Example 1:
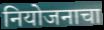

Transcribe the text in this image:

नियोजनाचा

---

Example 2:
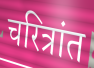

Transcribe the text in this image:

चरित्रांत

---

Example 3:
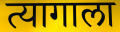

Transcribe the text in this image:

त्यागाला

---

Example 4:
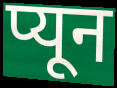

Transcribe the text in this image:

प्यून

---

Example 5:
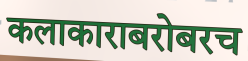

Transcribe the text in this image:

कलाकाराबरोबरच